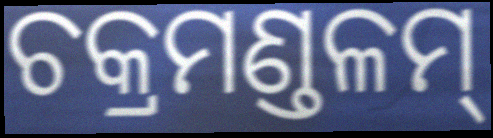
ଚକ୍ରମଣ୍ଡଳମ୍